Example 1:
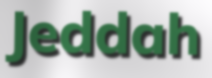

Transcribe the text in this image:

Jeddah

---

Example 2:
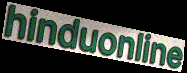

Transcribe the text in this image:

hinduonline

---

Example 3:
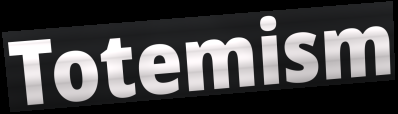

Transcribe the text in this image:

Totemism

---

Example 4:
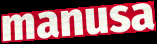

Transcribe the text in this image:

manusa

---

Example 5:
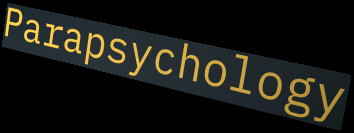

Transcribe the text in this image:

Parapsychology